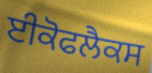
ਈਕੋਫਲੈਕਸ